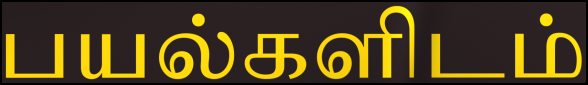
பயல்களிடம்